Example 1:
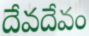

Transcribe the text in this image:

దేవదేవం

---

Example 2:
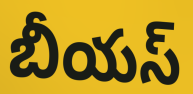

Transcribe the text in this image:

బీయస్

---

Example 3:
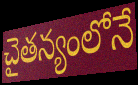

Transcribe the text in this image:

చైతన్యంలోనే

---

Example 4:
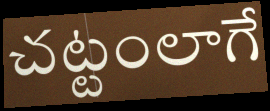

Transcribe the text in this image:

చట్టంలాగే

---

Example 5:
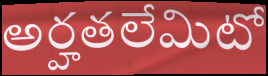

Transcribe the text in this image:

అర్హతలేమిటో